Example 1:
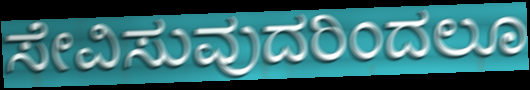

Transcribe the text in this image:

ಸೇವಿಸುವುದರಿಂದಲೂ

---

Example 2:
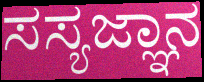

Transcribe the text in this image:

ಸಸ್ಯಜ್ಞಾನ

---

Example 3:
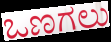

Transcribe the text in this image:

ಒಣಗಲು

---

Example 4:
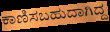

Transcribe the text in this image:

ಕಾಣಿಸಬಹುದಾಗಿದ್ದ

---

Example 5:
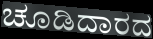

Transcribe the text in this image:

ಚೂಡಿದಾರದ